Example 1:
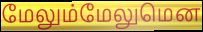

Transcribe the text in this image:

மேலும்மேலுமென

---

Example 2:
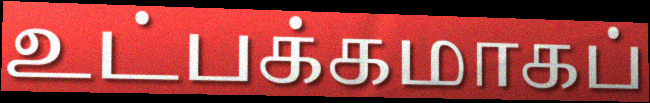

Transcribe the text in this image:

உட்பக்கமாகப்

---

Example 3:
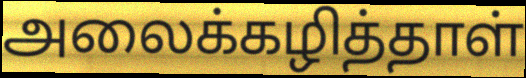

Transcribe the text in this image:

அலைக்கழித்தாள்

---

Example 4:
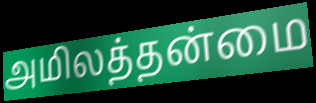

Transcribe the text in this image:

அமிலத்தன்மை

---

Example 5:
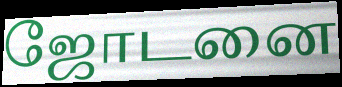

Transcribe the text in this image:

ஜோடனை